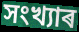
সংখ্যাৰ